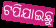
ଟପିଯାଇଛୁ